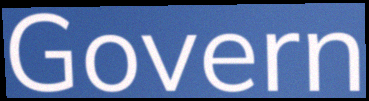
Govern